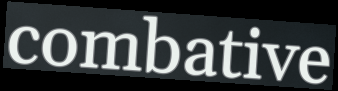
combative